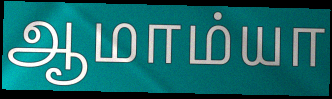
ஆமாம்யா